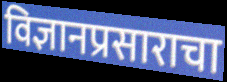
विज्ञानप्रसाराचा